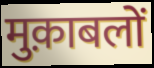
मुक़ाबलों